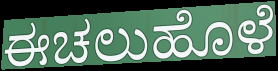
ಈಚಲುಹೊಳೆ